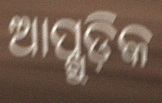
ଆପ୍ଗୁଡ଼ିକ